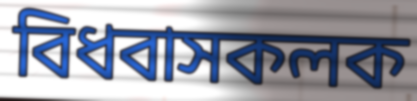
বিধবাসকলক